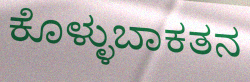
ಕೊಳ್ಳುಬಾಕತನ